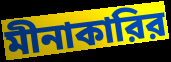
মীনাকারির